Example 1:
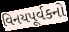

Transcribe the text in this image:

વિનયપૂર્વકનો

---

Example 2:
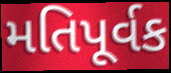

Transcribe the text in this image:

મતિપૂર્વક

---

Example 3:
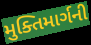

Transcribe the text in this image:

મુક્તિમાર્ગની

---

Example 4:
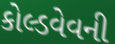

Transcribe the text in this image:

કોલ્ડવેવની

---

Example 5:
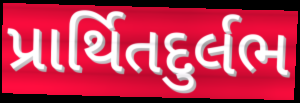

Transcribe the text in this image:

પ્રાર્થિતદુર્લભ